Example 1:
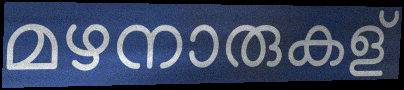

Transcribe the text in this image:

മഴനാരുകള്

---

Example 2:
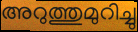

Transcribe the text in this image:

അറുത്തുമുറിച്ചു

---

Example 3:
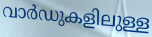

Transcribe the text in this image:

വാർഡുകളിലുള്ള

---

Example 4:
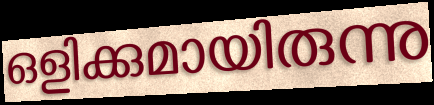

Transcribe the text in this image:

ഒളിക്കുമായിരുന്നു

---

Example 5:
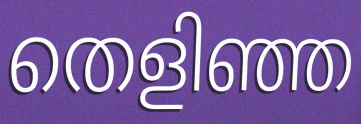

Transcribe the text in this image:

തെളിഞ്ഞ